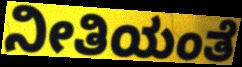
ನೀತಿಯಂತೆ